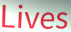
Lives